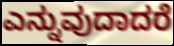
ಎನ್ನುವುದಾದರೆ